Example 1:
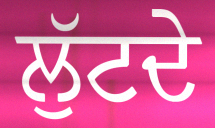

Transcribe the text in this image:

ਲੁੱਟਦੇ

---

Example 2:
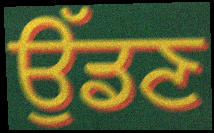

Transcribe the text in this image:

ਉੱਡਣ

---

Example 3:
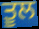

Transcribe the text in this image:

ਤੂਲ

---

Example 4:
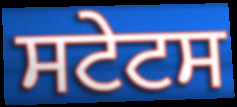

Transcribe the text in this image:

ਸਟੇਟਸ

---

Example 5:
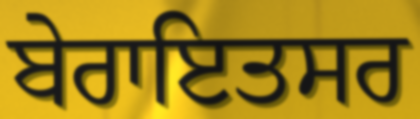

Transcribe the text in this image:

ਬੇਰਾਇਤਸਰ